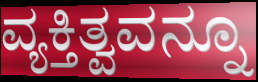
ವ್ಯಕ್ತಿತ್ವವನ್ನೂ